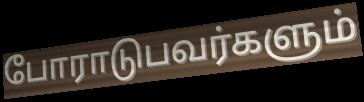
போராடுபவர்களும்